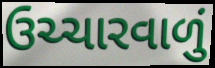
ઉચ્ચારવાળું